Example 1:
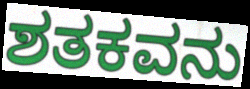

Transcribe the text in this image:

ಶತಕವನು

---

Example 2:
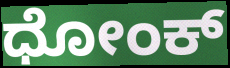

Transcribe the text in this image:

ಧೋಂಕ್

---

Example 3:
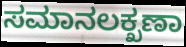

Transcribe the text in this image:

ಸಮಾನಲಕ್ಖಣಾ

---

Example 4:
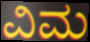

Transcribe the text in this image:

ವಿಮ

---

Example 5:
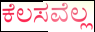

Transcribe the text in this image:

ಕೆಲಸವೆಲ್ಲ